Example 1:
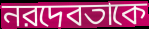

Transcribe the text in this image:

নরদেবতাকে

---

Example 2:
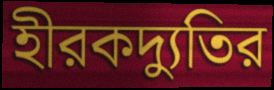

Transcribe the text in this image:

হীরকদ্যুতির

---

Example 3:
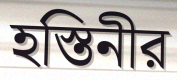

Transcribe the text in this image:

হস্তিনীর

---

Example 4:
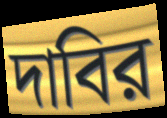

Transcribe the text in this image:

দাবির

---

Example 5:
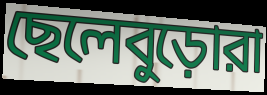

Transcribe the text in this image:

ছেলেবুড়োরা